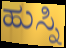
ಹುಸ್ನಿ